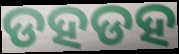
ଡହଡହ